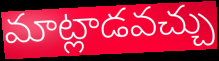
మాట్లాడవచ్చు